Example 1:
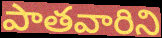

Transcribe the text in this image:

పాతవారిని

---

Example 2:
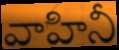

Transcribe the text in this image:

వాహినీ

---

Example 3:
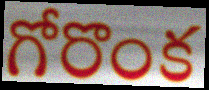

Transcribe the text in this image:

గోరొంక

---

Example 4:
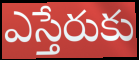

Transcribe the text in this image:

ఎస్తేరుకు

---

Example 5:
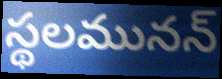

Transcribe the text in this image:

స్థలమునన్